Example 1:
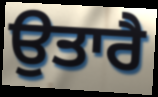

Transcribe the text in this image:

ਉਤਾਰੈ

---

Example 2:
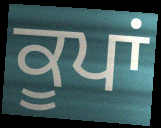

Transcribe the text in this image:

ਕੂਪਾਂ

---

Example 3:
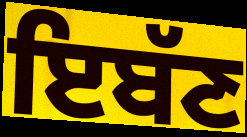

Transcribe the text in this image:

ਇਬੱਣ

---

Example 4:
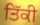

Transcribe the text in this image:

ਤਿੱਕੀ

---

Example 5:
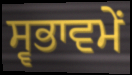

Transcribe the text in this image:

ਸ੍ਵਭਾਵਮੇਂ